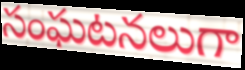
సంఘటనలుగా